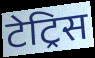
टेट्रिस